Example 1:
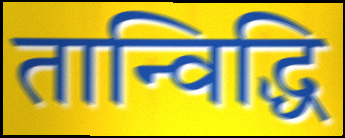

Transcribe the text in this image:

तान्विद्धि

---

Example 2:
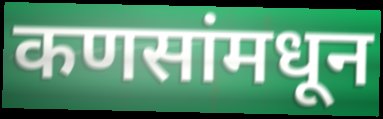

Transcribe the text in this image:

कणसांमधून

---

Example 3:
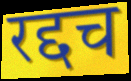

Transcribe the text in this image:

रद्दच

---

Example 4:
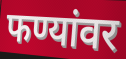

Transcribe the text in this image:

फण्यांवर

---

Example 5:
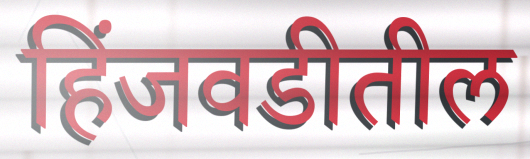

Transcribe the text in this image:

हिंजवडीतील